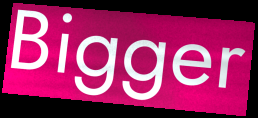
Bigger